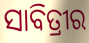
ସାବିତ୍ରୀର